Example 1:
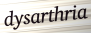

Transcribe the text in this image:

dysarthria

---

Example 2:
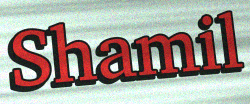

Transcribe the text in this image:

Shamil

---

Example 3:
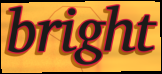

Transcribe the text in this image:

bright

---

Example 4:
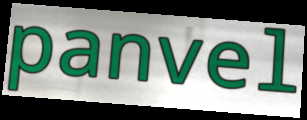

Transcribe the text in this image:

panvel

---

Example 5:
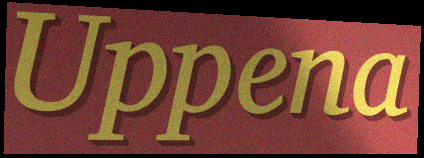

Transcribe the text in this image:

Uppena